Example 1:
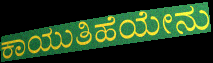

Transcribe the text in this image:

ಕಾಯುತಿಹೆಯೇನು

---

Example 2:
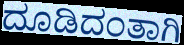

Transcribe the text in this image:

ದೂಡಿದಂತಾಗಿ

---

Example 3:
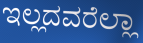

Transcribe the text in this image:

ಇಲ್ಲದವರೆಲ್ಲಾ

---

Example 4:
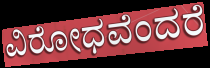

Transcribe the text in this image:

ವಿರೋಧವೆಂದರೆ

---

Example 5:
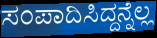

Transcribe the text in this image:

ಸಂಪಾದಿಸಿದ್ದನ್ನೆಲ್ಲ